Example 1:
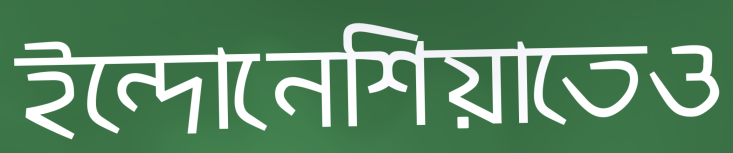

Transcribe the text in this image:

ইন্দোনেশিয়াতেও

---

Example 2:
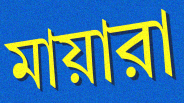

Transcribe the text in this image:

মায়ারা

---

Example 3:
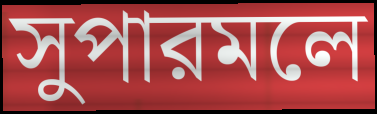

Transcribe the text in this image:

সুপারমলে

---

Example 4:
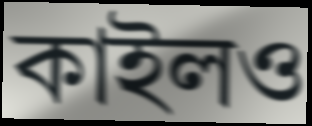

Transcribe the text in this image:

কাইলও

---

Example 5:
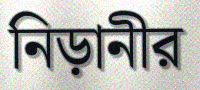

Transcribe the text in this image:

নিড়ানীর